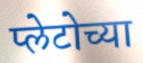
प्लेटोच्या